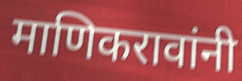
माणिकरावांनी